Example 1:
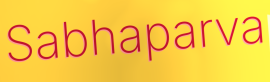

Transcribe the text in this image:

Sabhaparva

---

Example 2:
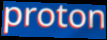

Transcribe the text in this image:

proton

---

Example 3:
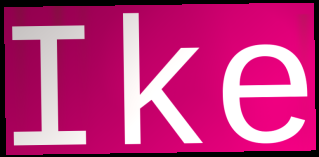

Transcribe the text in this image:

Ike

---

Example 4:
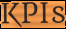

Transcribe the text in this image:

KPIs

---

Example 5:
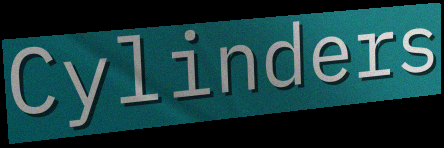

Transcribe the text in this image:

Cylinders